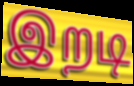
இறடி